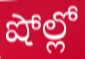
షోల్లో